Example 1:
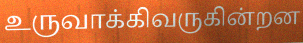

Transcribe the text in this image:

உருவாக்கிவருகின்றன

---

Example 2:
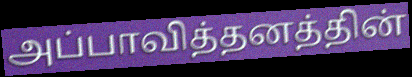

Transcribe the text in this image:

அப்பாவித்தனத்தின்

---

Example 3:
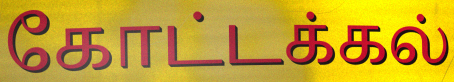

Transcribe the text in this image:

கோட்டக்கல்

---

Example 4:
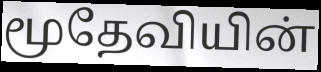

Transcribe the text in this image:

மூதேவியின்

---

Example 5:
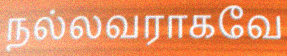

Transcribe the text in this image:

நல்லவராகவே